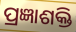
ପ୍ରଜ୍ଞାଶକ୍ତି